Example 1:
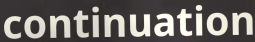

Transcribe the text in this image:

continuation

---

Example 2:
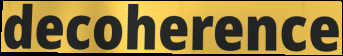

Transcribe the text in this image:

decoherence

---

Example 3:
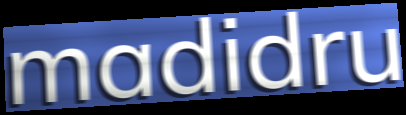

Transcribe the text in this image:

madidru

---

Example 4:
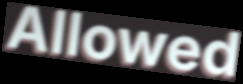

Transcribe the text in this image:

Allowed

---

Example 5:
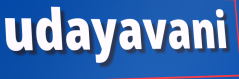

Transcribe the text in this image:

udayavani